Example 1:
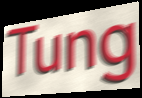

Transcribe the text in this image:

Tung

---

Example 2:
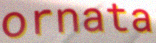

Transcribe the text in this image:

ornata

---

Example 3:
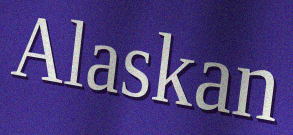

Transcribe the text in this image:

Alaskan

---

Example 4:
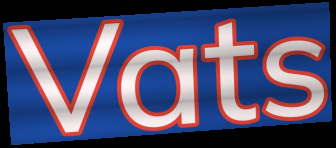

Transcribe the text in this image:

Vats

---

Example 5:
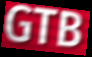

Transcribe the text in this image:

GTB